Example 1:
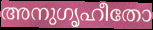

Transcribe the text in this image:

അനുഗൃഹീതോ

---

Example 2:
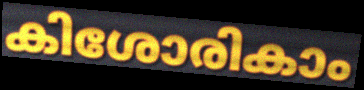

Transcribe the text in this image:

കിശോരികാം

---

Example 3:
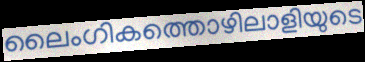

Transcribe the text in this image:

ലൈംഗികത്തൊഴിലാളിയുടെ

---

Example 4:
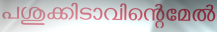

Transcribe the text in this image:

പശുക്കിടാവിന്റെമേൽ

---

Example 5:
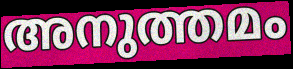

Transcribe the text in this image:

അനുത്തമം